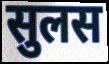
सुलस